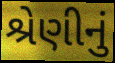
શ્રેણીનું